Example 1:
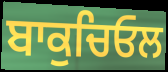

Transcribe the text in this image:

ਬਾਕੁਚਿਓਲ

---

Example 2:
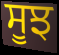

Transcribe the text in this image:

ਸੂਝ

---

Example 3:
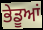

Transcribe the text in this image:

ਭੇਡੂਆਂ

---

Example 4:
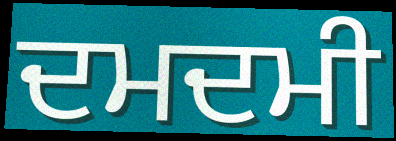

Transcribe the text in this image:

ਦਮਦਮੀ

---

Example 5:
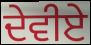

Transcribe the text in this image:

ਦੇਵੀਏ